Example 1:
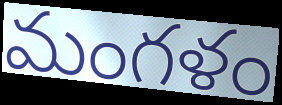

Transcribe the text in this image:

మంగళం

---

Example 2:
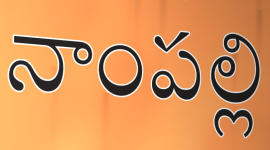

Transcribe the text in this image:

నాంపల్లి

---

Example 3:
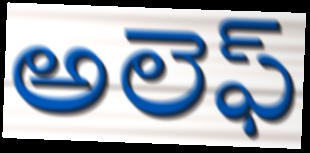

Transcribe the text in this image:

అలెఫ్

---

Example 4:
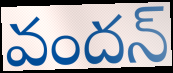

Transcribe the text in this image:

వందన్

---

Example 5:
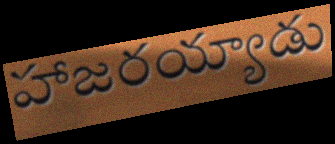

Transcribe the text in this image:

హాజరయ్యాడు